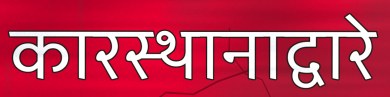
कारस्थानाद्वारे